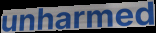
unharmed